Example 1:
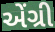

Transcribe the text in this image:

એંગ્રી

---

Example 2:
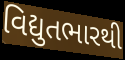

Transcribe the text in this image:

વિદ્યુતભારથી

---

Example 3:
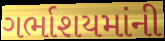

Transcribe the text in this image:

ગર્ભાશયમાંની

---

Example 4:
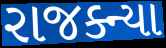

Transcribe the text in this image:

રાજક્ન્યા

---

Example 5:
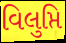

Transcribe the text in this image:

વિલુપ્તિ